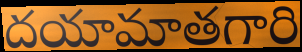
దయామాతగారి